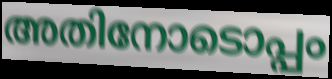
അതിനോടൊപ്പം